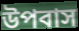
উপবাস